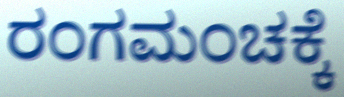
ರಂಗಮಂಚಕ್ಕೆ